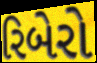
રિબેરો